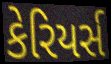
કેરિયર્સ